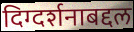
दिग्दर्शनाबद्दल